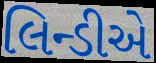
લિન્ડીએ